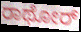
ರಾಥೋರ್